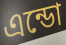
এন্ডো